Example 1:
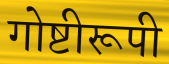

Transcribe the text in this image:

गोष्टीरूपी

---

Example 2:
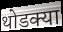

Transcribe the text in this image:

थोडक्या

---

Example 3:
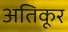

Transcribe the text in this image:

अतिकूर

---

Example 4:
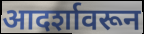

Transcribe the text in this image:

आदर्शावरून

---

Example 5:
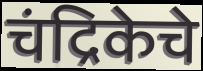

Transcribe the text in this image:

चंद्रिकेचे